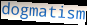
dogmatism